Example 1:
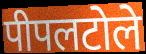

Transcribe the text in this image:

पीपलटोले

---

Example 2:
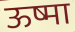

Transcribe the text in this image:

ऊष्‍मा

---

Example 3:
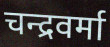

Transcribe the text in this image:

चन्द्रवर्मा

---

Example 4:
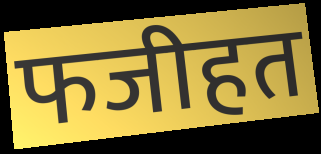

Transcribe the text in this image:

फजीहत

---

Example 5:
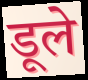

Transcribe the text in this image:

डूले